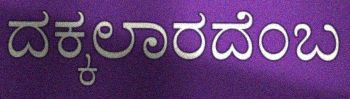
ದಕ್ಕಲಾರದೆಂಬ